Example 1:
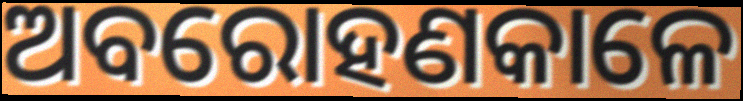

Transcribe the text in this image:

ଅବରୋହଣକାଳେ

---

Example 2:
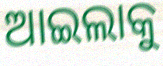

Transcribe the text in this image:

ଆଇଲାକୁ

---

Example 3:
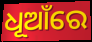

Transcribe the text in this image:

ଧୂଆଁରେ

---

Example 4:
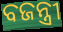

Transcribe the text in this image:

ବଜନ୍ତ୍ରୀ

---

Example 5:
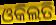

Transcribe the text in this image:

ଓକିଲତି